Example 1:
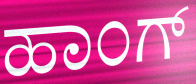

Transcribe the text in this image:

ಹಾಂಗ್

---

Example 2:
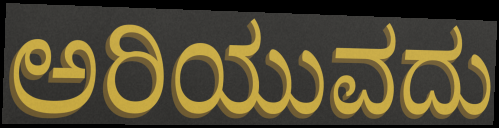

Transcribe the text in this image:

ಅರಿಯುವದು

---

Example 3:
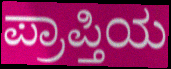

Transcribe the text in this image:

ಪ್ರಾಪ್ತಿಯ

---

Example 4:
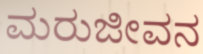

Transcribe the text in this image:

ಮರುಜೀವನ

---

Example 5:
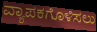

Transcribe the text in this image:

ವ್ಯಾಪಕಗೊಳಿಸಲು